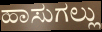
ಹಾಸುಗಲ್ಲು